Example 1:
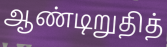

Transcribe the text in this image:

ஆண்டிறுதித்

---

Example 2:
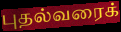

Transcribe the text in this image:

புதல்வரைக்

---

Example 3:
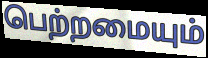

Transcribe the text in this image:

பெற்றமையும்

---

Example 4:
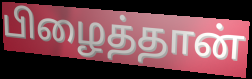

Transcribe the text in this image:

பிழைத்தான்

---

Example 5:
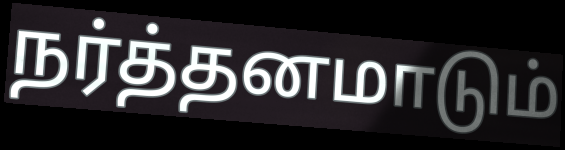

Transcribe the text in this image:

நர்த்தனமாடும்